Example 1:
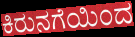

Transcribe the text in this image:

ಕಿರುನಗೆಯಿಂದ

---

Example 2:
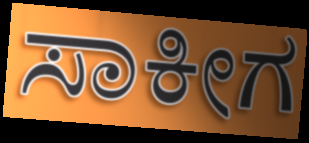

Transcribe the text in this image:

ಸಾಕೀಗ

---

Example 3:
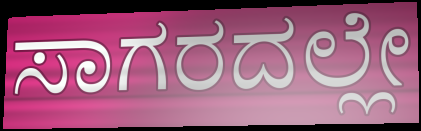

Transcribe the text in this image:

ಸಾಗರದಲ್ಲೇ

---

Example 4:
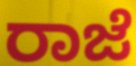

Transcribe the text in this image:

ರಾಜೆ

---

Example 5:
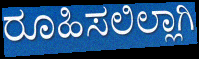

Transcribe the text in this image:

ರೂಹಿಸಲಿಲ್ಲಾಗಿ